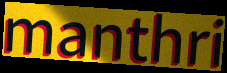
manthri